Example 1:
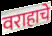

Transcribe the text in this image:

वराहाचे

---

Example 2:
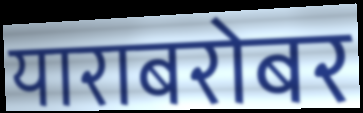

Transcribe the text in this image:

याराबरोबर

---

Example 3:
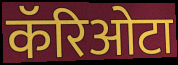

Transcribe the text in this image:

कॅरिओटा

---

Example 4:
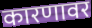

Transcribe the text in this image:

कारणावर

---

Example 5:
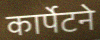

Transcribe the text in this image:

कार्पेटने